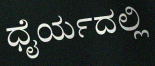
ಧೈರ್ಯದಲ್ಲಿ